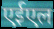
एईएल